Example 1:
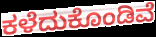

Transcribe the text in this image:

ಕಳೆದುಕೊಂಡಿವೆ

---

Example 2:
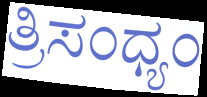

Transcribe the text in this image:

ತ್ರಿಸಂಧ್ಯಂ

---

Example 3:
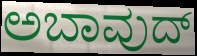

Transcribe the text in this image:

ಅಬಾವುದ್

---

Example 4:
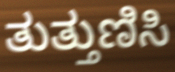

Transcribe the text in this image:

ತುತ್ತುಣಿಸಿ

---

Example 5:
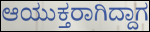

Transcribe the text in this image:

ಆಯುಕ್ತರಾಗಿದ್ದಾಗ